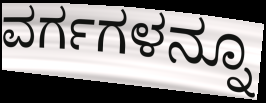
ವರ್ಗಗಳನ್ನೂ